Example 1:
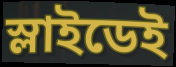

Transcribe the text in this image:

স্লাইডেই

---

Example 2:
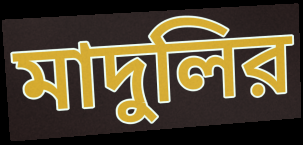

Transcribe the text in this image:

মাদুলির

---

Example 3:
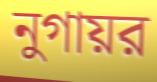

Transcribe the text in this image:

নুগায়র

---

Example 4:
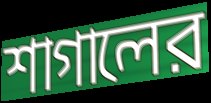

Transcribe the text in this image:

শাগালের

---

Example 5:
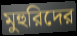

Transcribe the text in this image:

মুহুরিদের